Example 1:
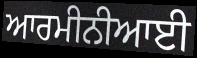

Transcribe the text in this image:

ਆਰਮੀਨੀਆਈ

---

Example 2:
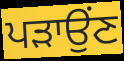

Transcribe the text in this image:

ਪੜਾਉਂਣ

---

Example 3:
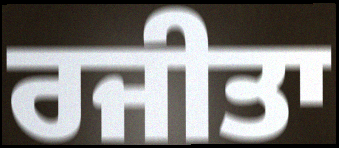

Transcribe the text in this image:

ਰਜੀਤਾ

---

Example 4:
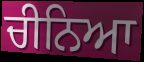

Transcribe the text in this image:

ਚੀਨਿਆ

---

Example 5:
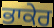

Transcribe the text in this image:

ਭਾਕੇਰ